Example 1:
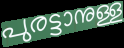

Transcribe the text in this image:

പുരട്ടാനുള്ള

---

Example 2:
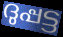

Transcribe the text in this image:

ദുപ്പട്ട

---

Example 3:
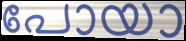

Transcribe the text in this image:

പോയാ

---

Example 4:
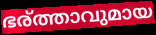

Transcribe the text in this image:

ഭര്ത്താവുമായ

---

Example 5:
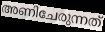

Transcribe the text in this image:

അണിചേരുന്നത്